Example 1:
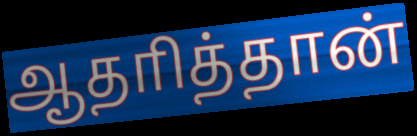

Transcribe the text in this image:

ஆதரித்தான்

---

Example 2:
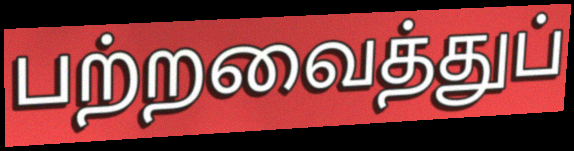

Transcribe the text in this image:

பற்றவைத்துப்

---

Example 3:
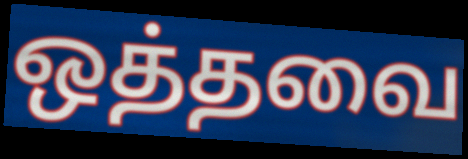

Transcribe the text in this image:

ஒத்தவை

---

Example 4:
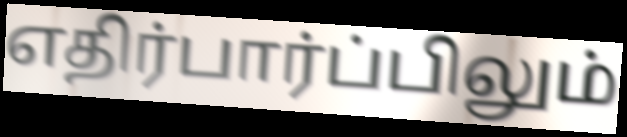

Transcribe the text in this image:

எதிர்பார்ப்பிலும்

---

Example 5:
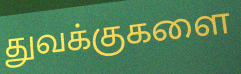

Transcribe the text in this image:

துவக்குகளை